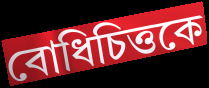
বোধিচিত্তকে